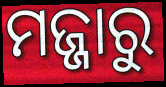
ମଜ୍ଜାରୁ